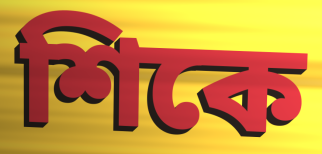
শিকে